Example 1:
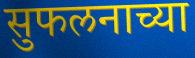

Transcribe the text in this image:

सुफलनाच्या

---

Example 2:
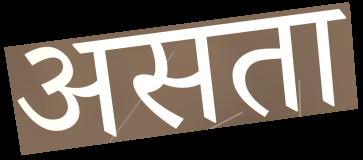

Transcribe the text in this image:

असता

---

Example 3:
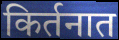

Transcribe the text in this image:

किर्तनात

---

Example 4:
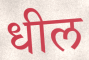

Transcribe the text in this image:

धील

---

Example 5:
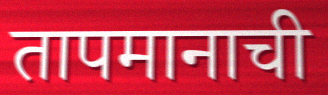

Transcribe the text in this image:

तापमानाची